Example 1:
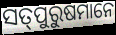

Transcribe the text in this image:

ସତ୍‌ପୁରୁଷମାନେ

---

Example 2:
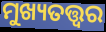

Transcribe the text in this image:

ମୁଖ୍ୟତତ୍ତ୍ୱର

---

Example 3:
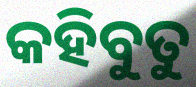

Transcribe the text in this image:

କହିବୁତୁ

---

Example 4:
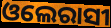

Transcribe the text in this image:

ଓଲେରାସୀ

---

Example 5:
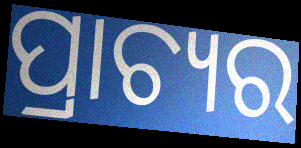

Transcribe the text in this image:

ପ୍ରାଚ୍ୟର